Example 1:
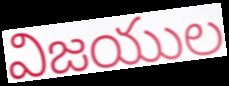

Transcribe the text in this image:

విజయుల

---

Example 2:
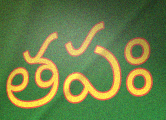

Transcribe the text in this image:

తపః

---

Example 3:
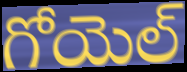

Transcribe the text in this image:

గోయెల్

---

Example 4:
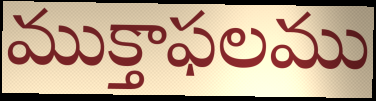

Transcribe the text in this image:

ముక్తాఫలము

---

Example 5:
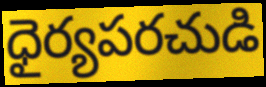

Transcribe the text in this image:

ధైర్యపరచుడి